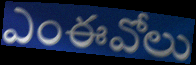
ఎంఈవోలు